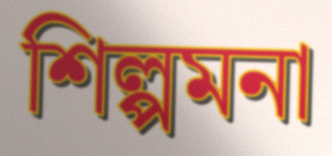
শিল্পমনা